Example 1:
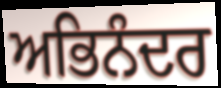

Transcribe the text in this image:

ਅਭਿਨੰਦਰ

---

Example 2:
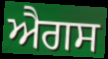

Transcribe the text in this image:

ਐਗਸ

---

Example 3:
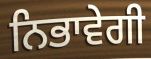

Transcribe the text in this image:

ਨਿਭਾਵੇਗੀ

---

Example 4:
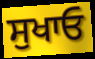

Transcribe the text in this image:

ਸੁਖਾਓ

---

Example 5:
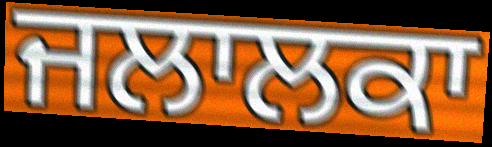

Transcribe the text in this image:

ਜਲਾਲਕਾ